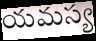
యమస్య